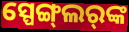
ସ୍ପେଙ୍ଗ୍‌ଲର୍‌ଙ୍କ